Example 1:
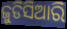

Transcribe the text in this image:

ଜୁଡିସିଆରି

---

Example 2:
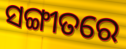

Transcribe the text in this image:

ସଙ୍ଗୀତରେ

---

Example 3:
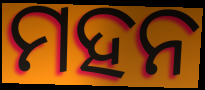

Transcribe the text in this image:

ମହନ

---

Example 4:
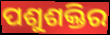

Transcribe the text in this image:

ପଶୁଶକ୍ତିର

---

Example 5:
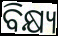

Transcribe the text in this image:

ବିକ୍ଷ୍ଯ